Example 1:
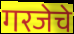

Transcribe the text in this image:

गरजेचे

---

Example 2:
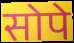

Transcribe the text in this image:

सोपे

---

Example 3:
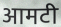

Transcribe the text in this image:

आमटी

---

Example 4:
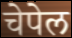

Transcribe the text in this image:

चेपेल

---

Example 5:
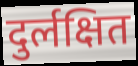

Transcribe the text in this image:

दुर्लक्षित